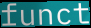
funct